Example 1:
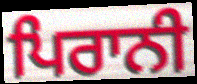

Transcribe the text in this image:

ਪਿਰਾਨੀ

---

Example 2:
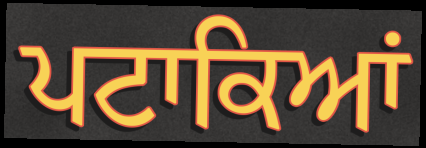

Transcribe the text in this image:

ਪਟਾਕਿਆਂ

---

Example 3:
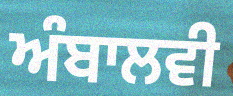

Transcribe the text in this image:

ਅੰਬਾਲਵੀ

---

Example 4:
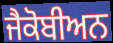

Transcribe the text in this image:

ਜੈਕੋਬੀਅਨ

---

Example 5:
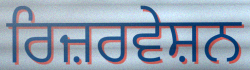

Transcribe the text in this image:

ਰਿਜ਼ਰਵੇਸ਼ਨ